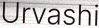
Urvashi